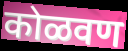
कोळवण